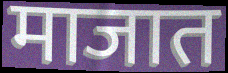
माजात